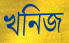
খনিজ